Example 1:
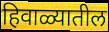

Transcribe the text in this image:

हिवाळ्यातील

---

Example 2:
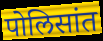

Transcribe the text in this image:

पोलिसांत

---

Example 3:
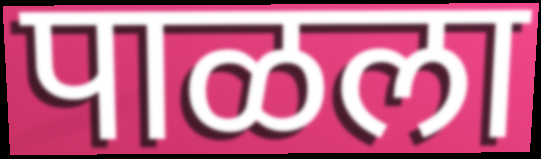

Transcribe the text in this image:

पाळला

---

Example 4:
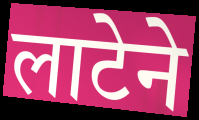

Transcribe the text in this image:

लाटेने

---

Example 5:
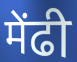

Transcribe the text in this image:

मेंढी